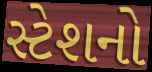
સ્ટેશનો